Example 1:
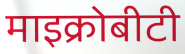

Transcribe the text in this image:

माइक्रोबीटी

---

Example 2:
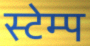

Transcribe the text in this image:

स्टेम्प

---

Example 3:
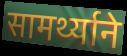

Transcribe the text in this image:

सामर्थ्याने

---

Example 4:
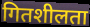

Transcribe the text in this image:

गितशीलता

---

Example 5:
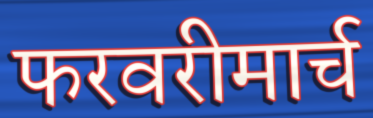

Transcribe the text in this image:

फरवरीमार्च